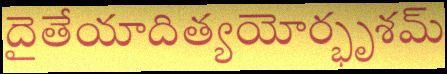
దైతేయాదిత్యయోర్భృశమ్